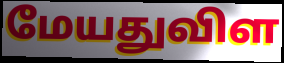
மேயதுவிள